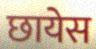
छायेस